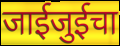
जाईजुईचा